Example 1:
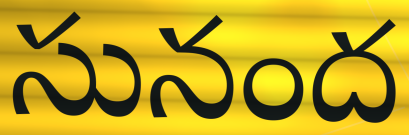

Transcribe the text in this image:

సునంద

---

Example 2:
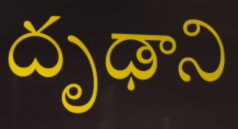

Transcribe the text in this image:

దృఢాని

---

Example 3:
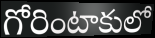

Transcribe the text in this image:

గోరింటాకులో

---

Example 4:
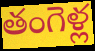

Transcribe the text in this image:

తంగెళ్ల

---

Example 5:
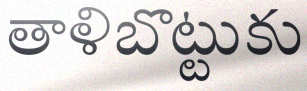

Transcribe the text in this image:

తాళిబొట్టుకు